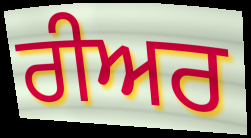
ਰੀਅਰ